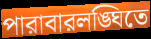
পারাবারলঙ্ঘিতে